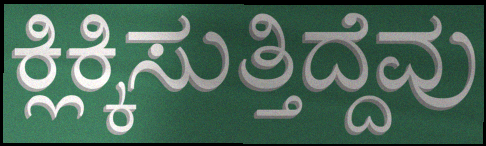
ಕ್ಲಿಕ್ಕಿಸುತ್ತಿದ್ದೆವು